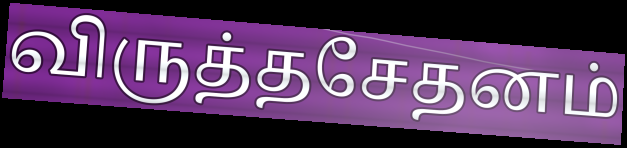
விருத்தசேதனம்